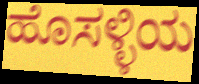
ಹೊಸಳ್ಳಿಯ